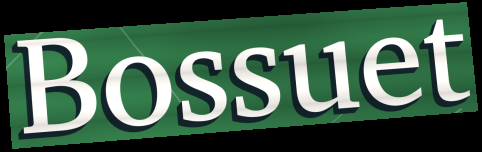
Bossuet